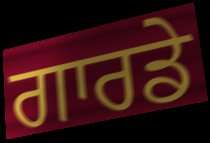
ਗਾਰਡੇ